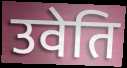
उवेति